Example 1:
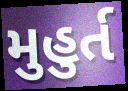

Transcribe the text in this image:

મુહુર્ત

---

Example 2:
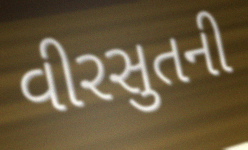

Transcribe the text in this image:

વીરસુતની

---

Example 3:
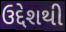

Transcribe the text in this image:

ઉદ્દેશથી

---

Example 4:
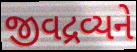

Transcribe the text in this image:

જીવદ્રવ્યને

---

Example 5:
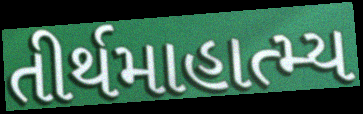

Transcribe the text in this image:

તીર્થમાહાત્મ્ય